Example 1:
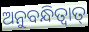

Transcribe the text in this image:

ଅନୁବନ୍ଧିତ୍ଵାତ୍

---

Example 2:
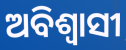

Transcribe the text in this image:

ଅବିଶ୍ଵାସୀ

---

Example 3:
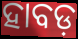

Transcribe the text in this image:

ହାବଡ଼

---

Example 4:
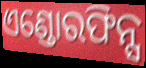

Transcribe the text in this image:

ଏଣ୍ଡୋରଫିନ୍ସ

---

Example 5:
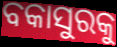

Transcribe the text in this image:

ବକାସୁରକୁ